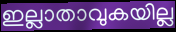
ഇല്ലാതാവുകയില്ല